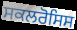
ਸਕਲਰੋਸਿਸ